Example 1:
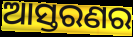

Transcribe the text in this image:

ଆସ୍ତରଣର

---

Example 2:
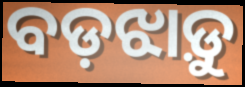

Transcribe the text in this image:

ବଡ଼ଝାଡ଼ୁ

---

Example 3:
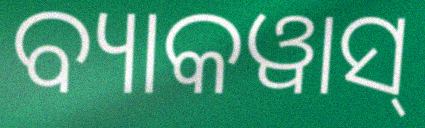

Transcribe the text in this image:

ବ୍ୟାକୱାସ୍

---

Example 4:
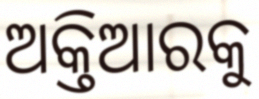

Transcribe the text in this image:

ଅକ୍ତିଆରକୁ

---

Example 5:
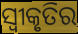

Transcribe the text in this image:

ସ୍ଵୀକୃତିର